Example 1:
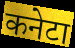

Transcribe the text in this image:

कनेटा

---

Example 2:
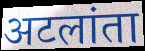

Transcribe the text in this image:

अटलांता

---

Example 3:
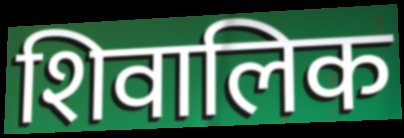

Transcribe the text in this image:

शिवालिक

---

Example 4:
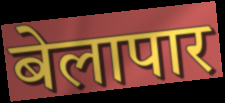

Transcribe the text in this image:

बेलापार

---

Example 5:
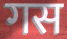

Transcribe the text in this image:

गस